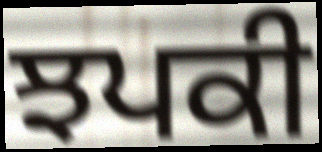
ਝਪਕੀ